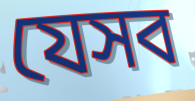
যেসব